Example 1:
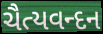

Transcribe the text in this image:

ચૈત્યવન્દન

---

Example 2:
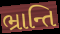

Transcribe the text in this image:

ભ્રાન્તિ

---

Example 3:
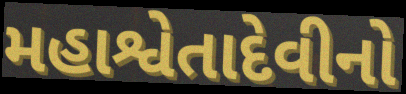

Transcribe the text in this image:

મહાશ્વેતાદેવીનો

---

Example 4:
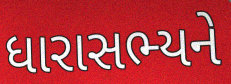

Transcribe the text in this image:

ધારાસભ્યને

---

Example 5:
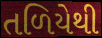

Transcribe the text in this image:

તળિયેથી